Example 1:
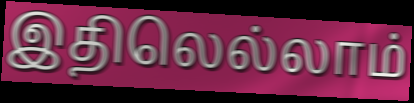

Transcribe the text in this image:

இதிலெல்லாம்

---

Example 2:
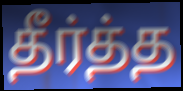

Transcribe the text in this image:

தீர்த்த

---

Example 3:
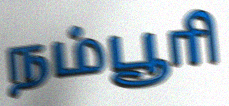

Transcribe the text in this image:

நம்பூரி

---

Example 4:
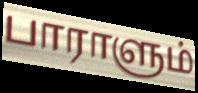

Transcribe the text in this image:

பாராளும்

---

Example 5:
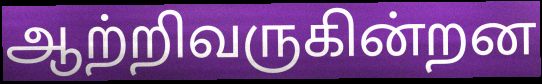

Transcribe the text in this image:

ஆற்றிவருகின்றன